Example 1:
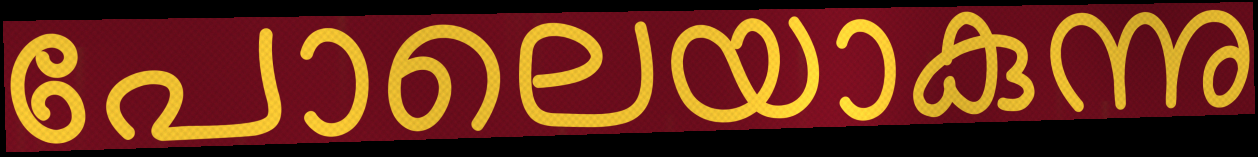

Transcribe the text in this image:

പോലെയാകുന്നു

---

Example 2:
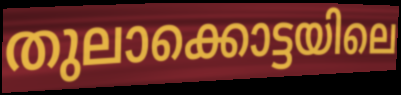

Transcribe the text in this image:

തുലാക്കൊട്ടയിലെ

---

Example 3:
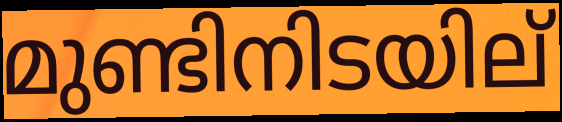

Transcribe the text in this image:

മുണ്ടിനിടയില്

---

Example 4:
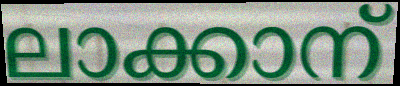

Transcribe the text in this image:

ലാക്കാന്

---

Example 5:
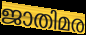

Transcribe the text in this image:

ജാതിമര